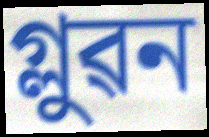
গ্লুৱন